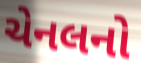
ચેનલનો